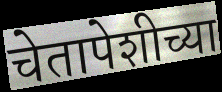
चेतापेशीच्या